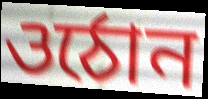
ওঠোন